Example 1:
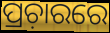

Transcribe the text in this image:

ପ୍ରଚ଼ାରରେ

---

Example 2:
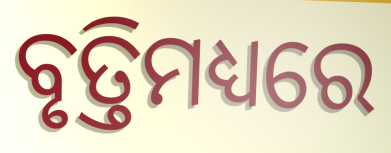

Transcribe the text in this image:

ବୃତ୍ତିମଧ୍ୟରେ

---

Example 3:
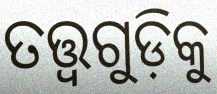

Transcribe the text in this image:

ତତ୍ତ୍ୱଗୁଡ଼ିକୁ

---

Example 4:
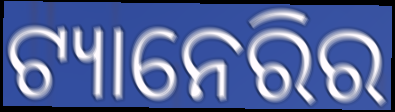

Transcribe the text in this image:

ଟ୍ୟାନେରିର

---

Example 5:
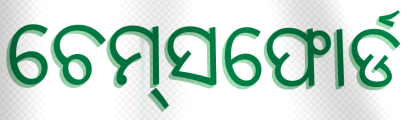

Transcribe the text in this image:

ଚେମ୍‌ସଫୋର୍ଡ